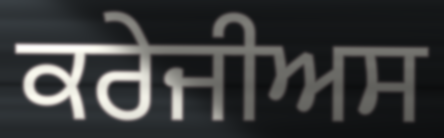
ਕਰੇਜੀਅਸ